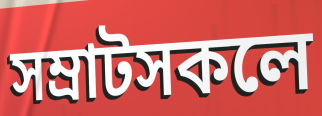
সম্ৰাটসকলে